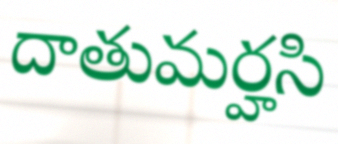
దాతుమర్హసి